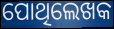
ପୋଥିଲେଖକ